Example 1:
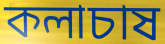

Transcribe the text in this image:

কলাচাষ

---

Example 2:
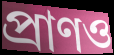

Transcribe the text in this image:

প্রাণও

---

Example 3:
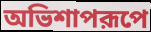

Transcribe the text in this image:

অভিশাপরূপে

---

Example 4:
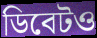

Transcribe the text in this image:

ডিবেটও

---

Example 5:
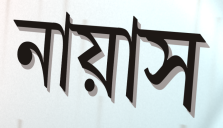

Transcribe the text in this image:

নায়াস